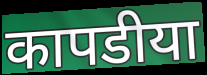
कापडीया